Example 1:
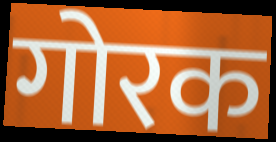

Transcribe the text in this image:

गोरक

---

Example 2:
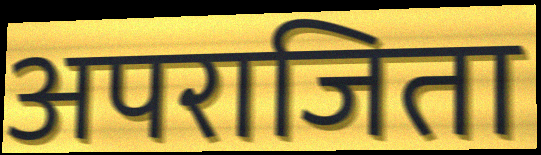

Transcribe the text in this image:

अपराजिता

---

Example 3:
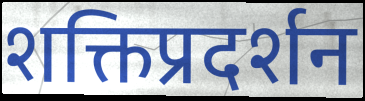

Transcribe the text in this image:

शक्तिप्रदर्शन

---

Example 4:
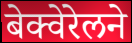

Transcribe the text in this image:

बेक्वेरेलने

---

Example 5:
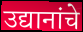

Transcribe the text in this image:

उद्यानांचे